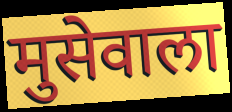
मुसेवाला